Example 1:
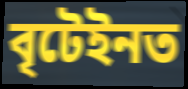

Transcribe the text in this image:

বৃটেইনত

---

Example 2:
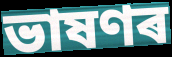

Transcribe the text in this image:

ভাষণৰ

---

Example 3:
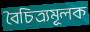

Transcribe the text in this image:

বৈচিত্ৰ্যমূলক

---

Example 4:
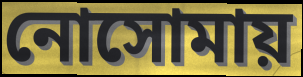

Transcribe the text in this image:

নোসোমায়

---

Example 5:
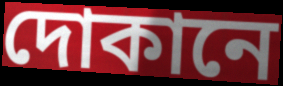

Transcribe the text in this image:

দোকানে